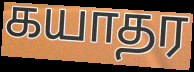
கயாதர